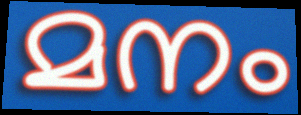
മനം